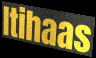
Itihaas